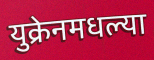
युक्रेनमधल्या